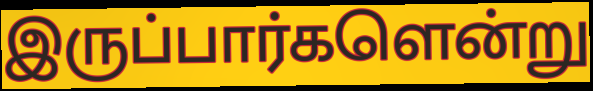
இருப்பார்களென்று